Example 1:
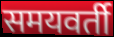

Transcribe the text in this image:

समयवर्ती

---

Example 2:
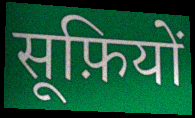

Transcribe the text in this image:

सूफ़ियों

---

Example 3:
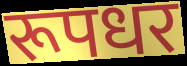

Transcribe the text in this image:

रूपधर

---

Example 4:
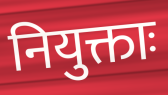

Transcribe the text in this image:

नियुक्ताः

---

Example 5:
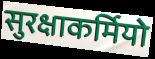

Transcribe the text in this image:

सुरक्षाकर्मियो